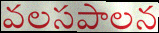
వలసపాలన